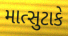
માત્સુટાકે